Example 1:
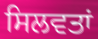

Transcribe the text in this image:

ਸਿਲਵਤਾਂ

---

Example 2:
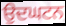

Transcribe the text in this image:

ਉਦਘਟਨ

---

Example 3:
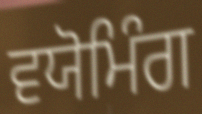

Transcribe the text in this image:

ਵਯੋਮਿੰਗ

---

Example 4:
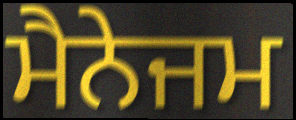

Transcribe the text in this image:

ਮੈਨੇਜਮ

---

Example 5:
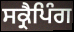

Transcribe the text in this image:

ਸਕ੍ਰੈਪਿੰਗ